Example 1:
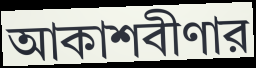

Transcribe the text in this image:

আকাশবীণার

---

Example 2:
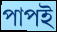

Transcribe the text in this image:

পাপই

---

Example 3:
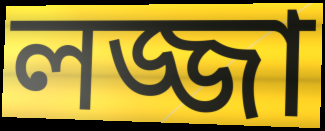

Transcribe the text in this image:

লজ্জা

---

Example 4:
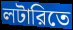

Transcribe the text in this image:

লটারিতে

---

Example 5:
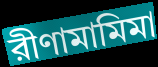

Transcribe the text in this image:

রীণামামিমা